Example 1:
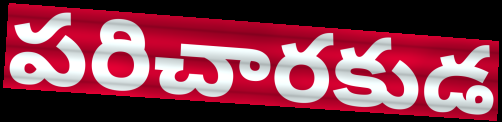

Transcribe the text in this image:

పరిచారకుడ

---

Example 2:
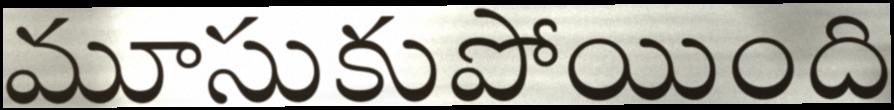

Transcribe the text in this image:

మూసుకుపోయింది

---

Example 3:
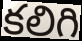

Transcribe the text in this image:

కలిగి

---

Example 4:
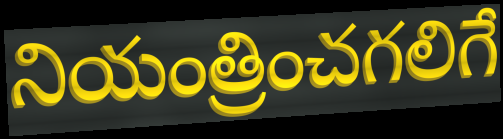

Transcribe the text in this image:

నియంత్రించగలిగే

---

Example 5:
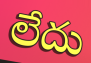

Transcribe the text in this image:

లేదు